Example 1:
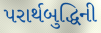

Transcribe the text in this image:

પરાર્થબુદ્ધિની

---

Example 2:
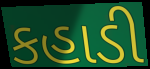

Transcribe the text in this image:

કહાડી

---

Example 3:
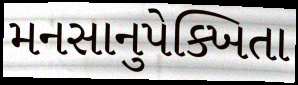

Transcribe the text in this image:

મનસાનુપેક્ખિતા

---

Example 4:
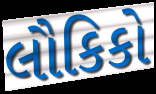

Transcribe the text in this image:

લૌકિકો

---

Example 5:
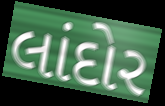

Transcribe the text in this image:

લાંદોર